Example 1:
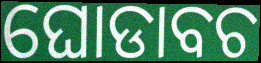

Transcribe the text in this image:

ଘୋଡାବଚ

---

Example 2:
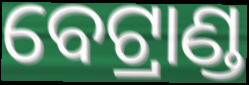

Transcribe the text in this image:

ବେଟ୍ରାଣ୍ଡ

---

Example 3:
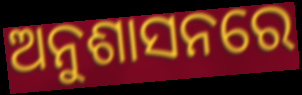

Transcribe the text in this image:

ଅନୁଶାସନରେ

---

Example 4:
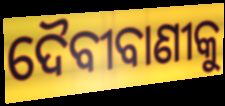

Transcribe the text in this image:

ଦୈବୀବାଣୀକୁ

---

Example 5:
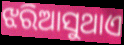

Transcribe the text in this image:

ଝରିଆସୁଥାଏ